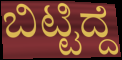
ಬಿಟ್ಟಿದ್ದೆ